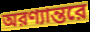
অরণ্যান্তরে